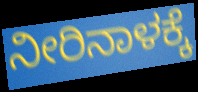
ನೀರಿನಾಳಕ್ಕೆ